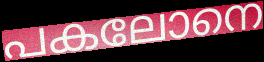
പകലോനെ